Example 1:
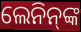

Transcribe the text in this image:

ଲେନିନ୍‌ଙ୍କ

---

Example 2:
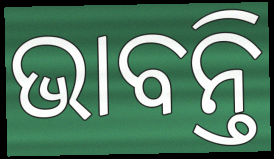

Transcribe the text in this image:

ଭାବନ୍ତି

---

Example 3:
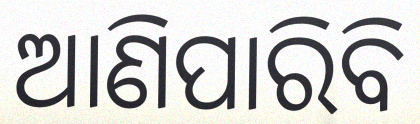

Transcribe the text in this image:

ଆଣିପାରିବି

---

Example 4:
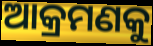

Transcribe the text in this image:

ଆକ୍ରମଣକୁ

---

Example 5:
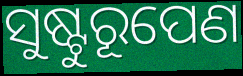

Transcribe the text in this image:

ସୁଷ୍ଟୁରୂପେଣ